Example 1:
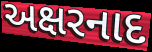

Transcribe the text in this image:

અક્ષરનાદ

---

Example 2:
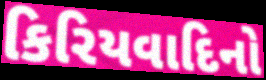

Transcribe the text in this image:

કિરિયવાદિનો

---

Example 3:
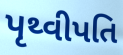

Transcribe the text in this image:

પૃથ્વીપતિ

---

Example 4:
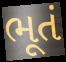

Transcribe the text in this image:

ભૂતં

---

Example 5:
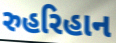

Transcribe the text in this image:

રુહરિહાન